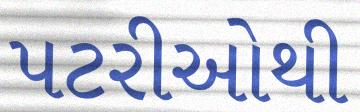
પટરીઓથી